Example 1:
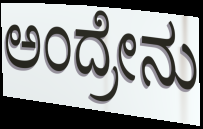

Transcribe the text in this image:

ಅಂದ್ರೇನು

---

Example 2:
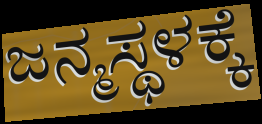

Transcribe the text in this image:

ಜನ್ಮಸ್ಥಳಕ್ಕೆ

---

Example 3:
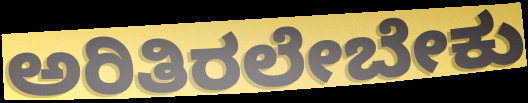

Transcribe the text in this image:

ಅರಿತಿರಲೇಬೇಕು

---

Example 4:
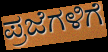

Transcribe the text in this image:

ಪ್ರಜೆಗಳಿಗೆ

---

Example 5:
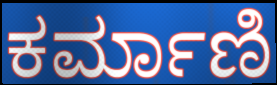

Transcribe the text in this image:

ಕರ್ಮಾಣಿ